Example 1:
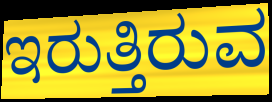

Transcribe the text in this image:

ಇರುತ್ತಿರುವ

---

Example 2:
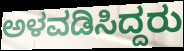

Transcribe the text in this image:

ಅಳವಡಿಸಿದ್ದರು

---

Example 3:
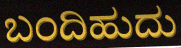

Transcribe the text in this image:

ಬಂದಿಹುದು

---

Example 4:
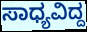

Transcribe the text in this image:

ಸಾಧ್ಯವಿದ್ದ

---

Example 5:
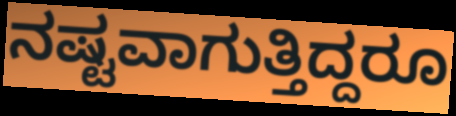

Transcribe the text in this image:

ನಷ್ಟವಾಗುತ್ತಿದ್ದರೂ